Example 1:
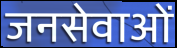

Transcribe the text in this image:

जनसेवाओं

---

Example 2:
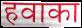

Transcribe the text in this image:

हवाका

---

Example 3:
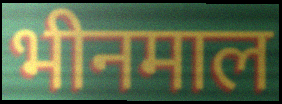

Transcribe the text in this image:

भीनमाल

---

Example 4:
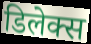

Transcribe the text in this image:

डिलेक्स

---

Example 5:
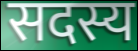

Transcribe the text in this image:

सदस्य